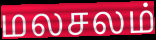
மலசலம்